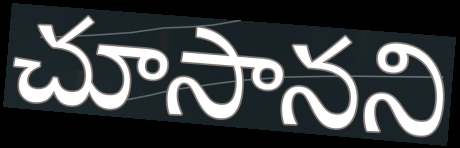
చూసానని